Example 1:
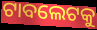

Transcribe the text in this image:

ଟାବଲେଟକୁ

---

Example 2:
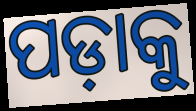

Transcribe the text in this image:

ପଡ଼ାକୁ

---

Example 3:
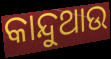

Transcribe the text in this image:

କାନ୍ଦୁଥାଉ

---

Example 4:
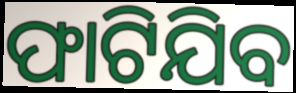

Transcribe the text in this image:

ଫାଟିଯିବ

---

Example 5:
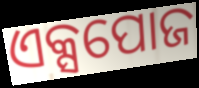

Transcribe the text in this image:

ଏକ୍ସପୋଜ